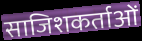
साजिशकर्ताओं